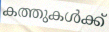
കത്തുകൾക്ക്